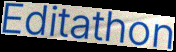
Editathon